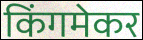
किंगमेकर